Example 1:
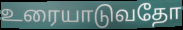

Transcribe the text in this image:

உரையாடுவதோ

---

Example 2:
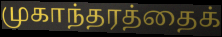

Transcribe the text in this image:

முகாந்தரத்தைக்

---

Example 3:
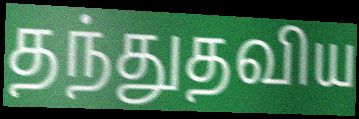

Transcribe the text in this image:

தந்துதவிய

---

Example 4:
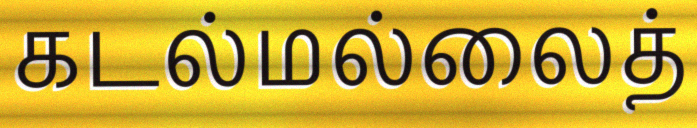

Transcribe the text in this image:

கடல்மல்லைத்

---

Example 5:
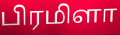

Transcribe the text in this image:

பிரமிளா